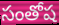
సంతోష